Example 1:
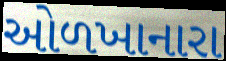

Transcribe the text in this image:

ઓળખાનારા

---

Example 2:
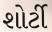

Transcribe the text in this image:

શોર્ટી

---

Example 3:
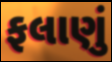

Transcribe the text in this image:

ફલાણું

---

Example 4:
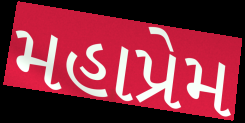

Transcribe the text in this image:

મહાપ્રેમ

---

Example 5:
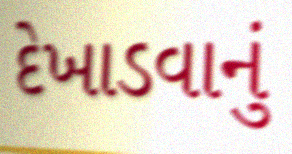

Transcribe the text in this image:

દેખાડવાનું